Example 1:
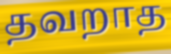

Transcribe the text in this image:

தவறாத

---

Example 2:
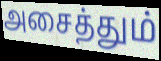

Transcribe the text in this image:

அசைத்தும்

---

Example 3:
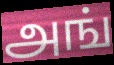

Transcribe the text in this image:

அங்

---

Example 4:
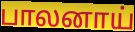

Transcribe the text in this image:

பாலனாய்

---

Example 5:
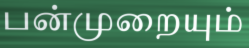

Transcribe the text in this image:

பன்முறையும்